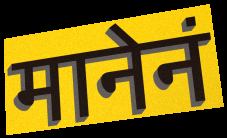
मानेनं